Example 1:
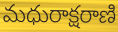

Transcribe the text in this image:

మధురాక్షరాణి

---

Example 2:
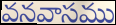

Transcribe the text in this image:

వనవాసము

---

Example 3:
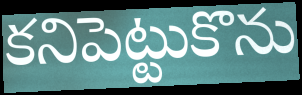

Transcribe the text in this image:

కనిపెట్టుకొను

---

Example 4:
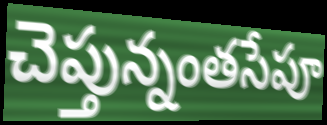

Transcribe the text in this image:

చెప్తున్నంతసేపూ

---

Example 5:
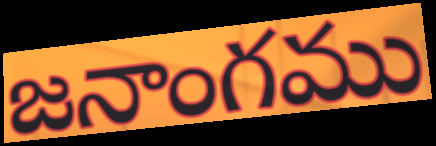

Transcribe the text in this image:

జనాంగము